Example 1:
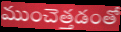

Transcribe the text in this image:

ముంచెత్తడంతో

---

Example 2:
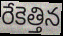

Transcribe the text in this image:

రేకెత్తిన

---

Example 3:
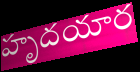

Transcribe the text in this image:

హృదయార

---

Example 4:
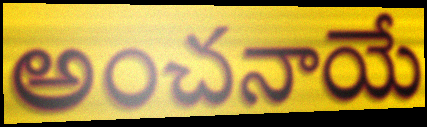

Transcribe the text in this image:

అంచనాయే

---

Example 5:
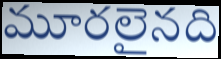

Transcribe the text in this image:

మూరలైనది